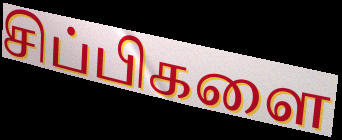
சிப்பிகளை